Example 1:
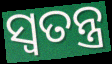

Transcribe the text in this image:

ସ୍ୱତନ୍ତ୍ର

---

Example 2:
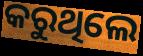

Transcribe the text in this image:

କରୁଥିଲେ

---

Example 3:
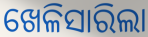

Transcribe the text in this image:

ଖେଳିସାରିଲା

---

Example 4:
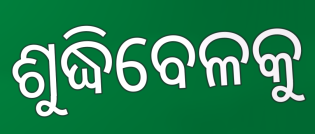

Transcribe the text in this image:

ଶୁଦ୍ଧିବେଳକୁ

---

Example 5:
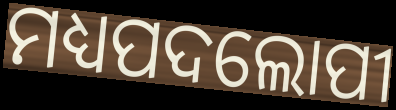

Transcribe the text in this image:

ମଧ୍ଯପଦଲୋପୀ